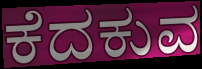
ಕೆದಕುವ